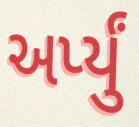
અર્પ્યું